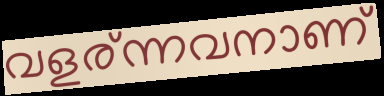
വളര്ന്നവനാണ്